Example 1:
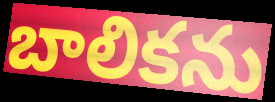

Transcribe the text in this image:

బాలికను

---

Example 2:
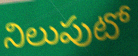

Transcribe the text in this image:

నిలుపుటో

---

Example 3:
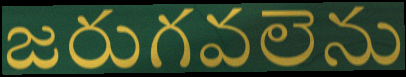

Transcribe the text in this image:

జరుగవలెను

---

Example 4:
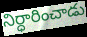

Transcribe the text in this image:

నిర్ధారించాడు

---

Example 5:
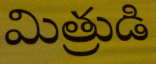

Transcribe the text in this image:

మిత్రుడి